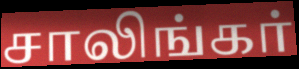
சாலிங்கர்